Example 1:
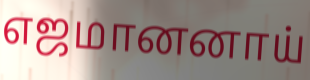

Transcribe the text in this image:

எஜமானனாய்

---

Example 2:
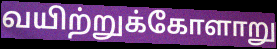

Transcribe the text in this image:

வயிற்றுக்கோளாறு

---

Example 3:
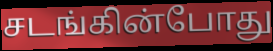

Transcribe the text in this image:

சடங்கின்போது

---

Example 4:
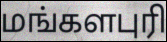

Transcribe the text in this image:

மங்களபுரி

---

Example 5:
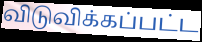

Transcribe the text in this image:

விடுவிக்கப்பட்ட